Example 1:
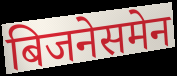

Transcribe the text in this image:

बिजनेसमेन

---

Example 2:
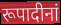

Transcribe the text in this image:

रूपादीनां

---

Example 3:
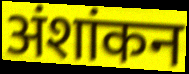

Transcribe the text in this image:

अंशांकन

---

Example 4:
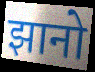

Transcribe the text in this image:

झानो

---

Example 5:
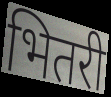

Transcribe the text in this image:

भितरी